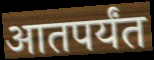
आतपर्यंत